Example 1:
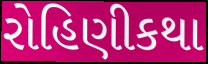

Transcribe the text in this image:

રોહિણીકથા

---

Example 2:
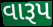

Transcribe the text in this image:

વારૂપ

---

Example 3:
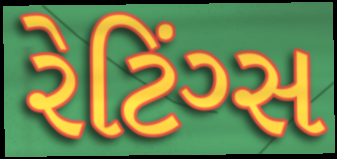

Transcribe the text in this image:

રેટિંગ્સ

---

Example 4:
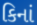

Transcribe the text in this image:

કિનાં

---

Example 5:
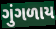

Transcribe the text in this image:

ગુંગળાય